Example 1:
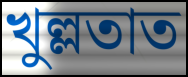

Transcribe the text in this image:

খুল্লতাত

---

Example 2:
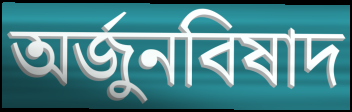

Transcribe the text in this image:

অর্জুনবিষাদ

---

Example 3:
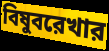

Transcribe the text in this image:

বিষুবরেখার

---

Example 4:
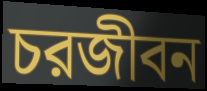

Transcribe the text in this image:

চরজীবন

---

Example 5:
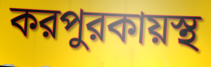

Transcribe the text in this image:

করপুরকায়স্থ